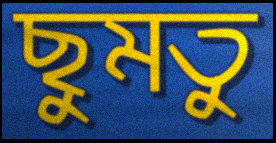
ছুমতু